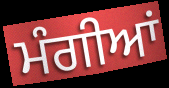
ਮੰਗੀਆਂ